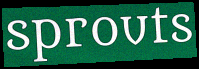
sprouts